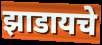
झाडायचे